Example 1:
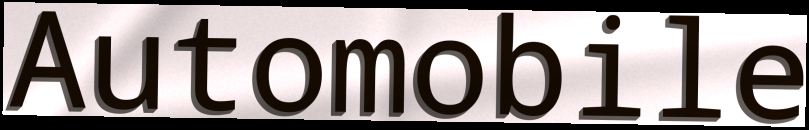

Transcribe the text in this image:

Automobile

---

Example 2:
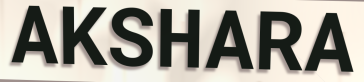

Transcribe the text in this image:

AKSHARA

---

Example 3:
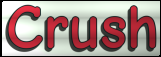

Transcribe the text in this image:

Crush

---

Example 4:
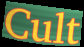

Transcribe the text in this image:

Cult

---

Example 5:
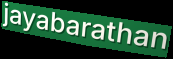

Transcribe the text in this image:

jayabarathan